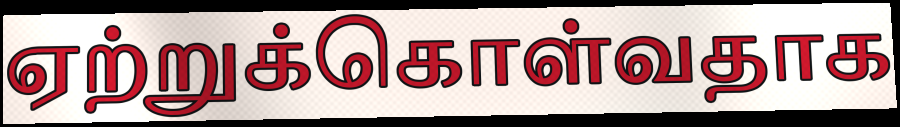
ஏற்றுக்கொள்வதாக